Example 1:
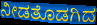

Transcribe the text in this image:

ನೀಡತೊಡಗಿದ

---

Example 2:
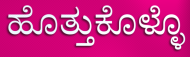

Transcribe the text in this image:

ಹೊತ್ತುಕೊಳ್ಳೊ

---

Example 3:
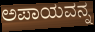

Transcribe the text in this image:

ಅಪಾಯವನ್ನ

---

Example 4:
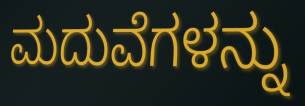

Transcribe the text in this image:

ಮದುವೆಗಳನ್ನು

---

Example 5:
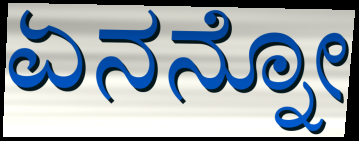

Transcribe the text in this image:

ಏನನ್ನೋ